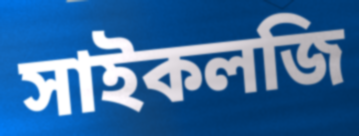
সাইকলজি